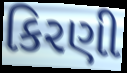
કિરણી